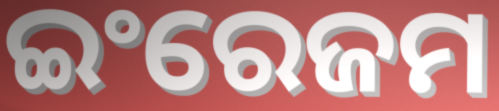
ଇଂରେଜମ